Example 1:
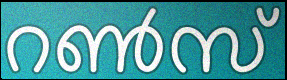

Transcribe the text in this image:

റൺസ്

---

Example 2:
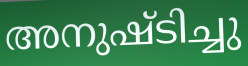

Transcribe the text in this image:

അനുഷ്ടിച്ചു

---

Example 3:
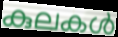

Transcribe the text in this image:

കുലകൾ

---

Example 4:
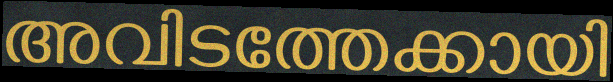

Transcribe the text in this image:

അവിടത്തേക്കായി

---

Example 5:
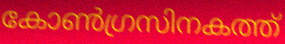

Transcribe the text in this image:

കോൺഗ്രസിനകത്ത്